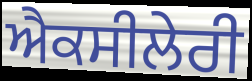
ਐਕਸੀਲੇਰੀ